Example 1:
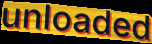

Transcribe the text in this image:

unloaded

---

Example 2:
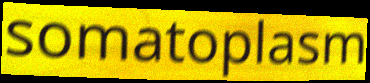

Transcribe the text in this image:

somatoplasm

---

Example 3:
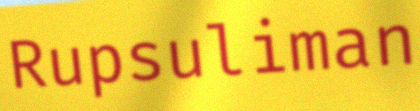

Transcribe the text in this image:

Rupsuliman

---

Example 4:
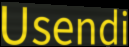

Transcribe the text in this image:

Usendi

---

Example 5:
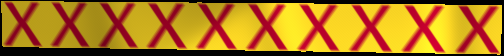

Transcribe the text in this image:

xxxxxxxxxx